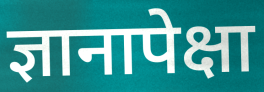
ज्ञानापेक्षा